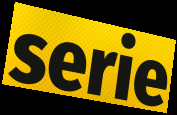
serie